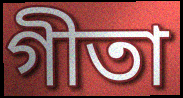
গীতা